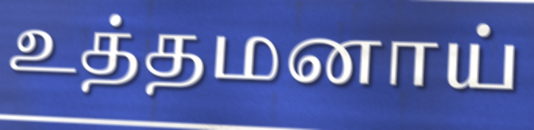
உத்தமனாய்